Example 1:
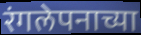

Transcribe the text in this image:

रंगलेपनाच्या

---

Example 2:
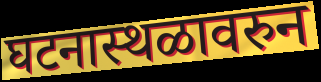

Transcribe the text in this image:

घटनास्थळावरुन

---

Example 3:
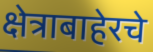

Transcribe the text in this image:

क्षेत्राबाहेरचे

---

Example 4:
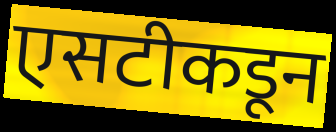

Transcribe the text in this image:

एसटीकडून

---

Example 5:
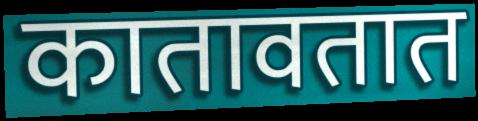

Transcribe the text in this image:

कातावतात